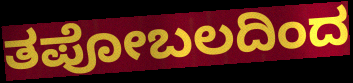
ತಪೋಬಲದಿಂದ